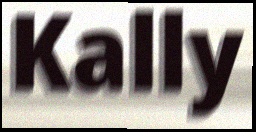
Kally